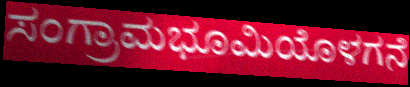
ಸಂಗ್ರಾಮಭೂಮಿಯೊಳಗನೆ